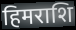
हिमराशि